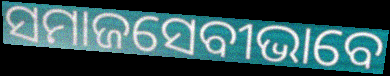
ସମାଜସେବୀଭାବେ